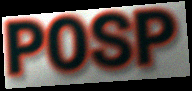
POSP